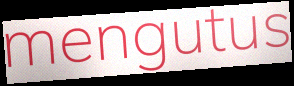
mengutus